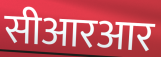
सीआरआर